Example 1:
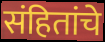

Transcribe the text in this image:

संहितांचे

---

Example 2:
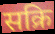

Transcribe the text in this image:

सक्रि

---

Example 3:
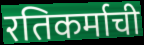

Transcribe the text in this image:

रतिकर्माची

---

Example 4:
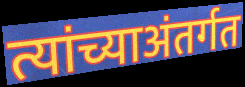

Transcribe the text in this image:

त्यांच्याअंतर्गत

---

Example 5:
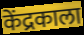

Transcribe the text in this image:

केंद्रकाला